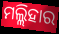
ମଲ୍ଲିହାର